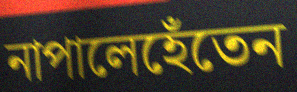
নাপালেহেঁতেন